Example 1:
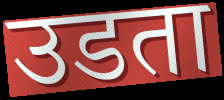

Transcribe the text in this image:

उडता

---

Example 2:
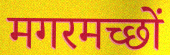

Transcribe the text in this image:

मगरमच्छों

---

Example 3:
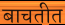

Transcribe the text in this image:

बाचतीत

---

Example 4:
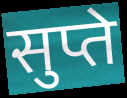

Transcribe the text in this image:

सुप्ते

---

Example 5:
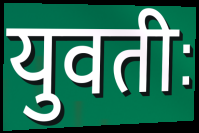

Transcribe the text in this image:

युवतीः